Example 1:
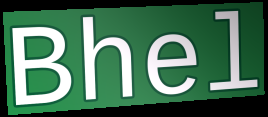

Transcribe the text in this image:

Bhel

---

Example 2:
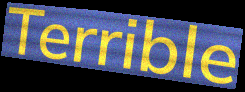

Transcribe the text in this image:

Terrible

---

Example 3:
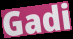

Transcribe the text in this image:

Gadi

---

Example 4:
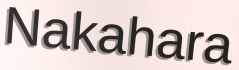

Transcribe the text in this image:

Nakahara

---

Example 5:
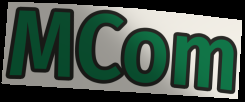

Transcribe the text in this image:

MCom